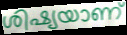
ശിഷ്യയാണ്